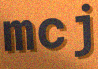
mcj